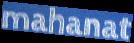
mahanat